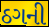
ઠગની